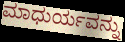
ಮಾಧುರ್ಯವನ್ನು